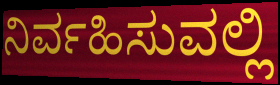
ನಿರ್ವಹಿಸುವಲ್ಲಿ